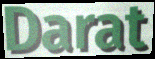
Darat